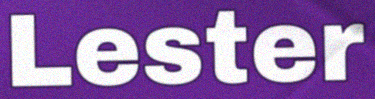
Lester